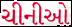
ચીનીઓ